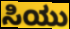
ಸಿಯು